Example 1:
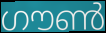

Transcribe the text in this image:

ഗൗൺ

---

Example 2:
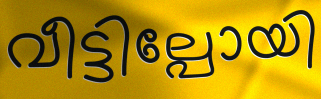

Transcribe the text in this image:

വീട്ടില്പോയി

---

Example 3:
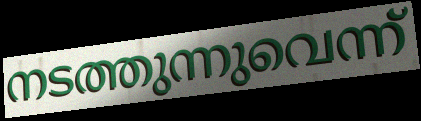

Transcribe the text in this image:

നടത്തുന്നുവെന്ന്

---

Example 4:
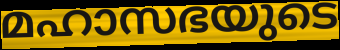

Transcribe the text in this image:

മഹാസഭയുടെ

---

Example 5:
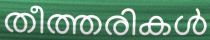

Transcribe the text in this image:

തീത്തരികൾ